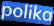
polika